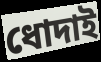
ধোদাই